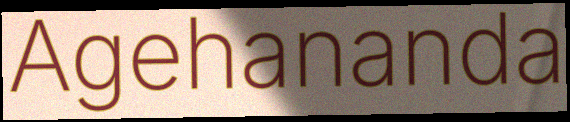
Agehananda